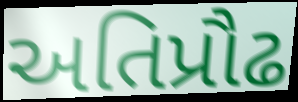
અતિપ્રૌઢ